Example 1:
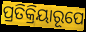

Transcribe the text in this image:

ପ୍ରତିକ୍ରିୟାରୂପେ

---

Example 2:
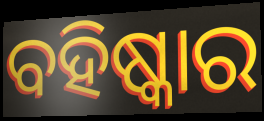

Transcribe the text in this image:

ବହିଷ୍କାର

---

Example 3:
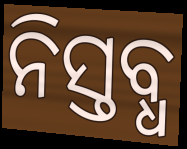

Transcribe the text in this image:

ନିସ୍ତବ୍ଧ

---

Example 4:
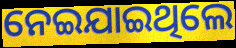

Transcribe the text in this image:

ନେଇଯାଇଥିଲେ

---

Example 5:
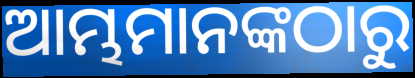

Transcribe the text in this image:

ଆମ୍ଭମାନଙ୍କଠାରୁ